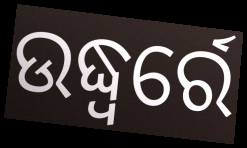
ଉଦ୍ଧ୍ୱର୍ରେ